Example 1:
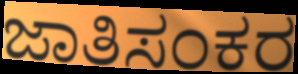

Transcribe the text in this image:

ಜಾತಿಸಂಕರ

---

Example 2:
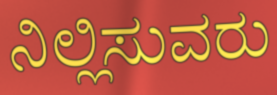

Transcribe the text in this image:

ನಿಲ್ಲಿಸುವರು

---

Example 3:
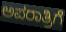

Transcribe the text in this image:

ಅಪರಾತ್ರಿಗೆ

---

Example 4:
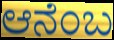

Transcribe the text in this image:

ಆನೆಂಬ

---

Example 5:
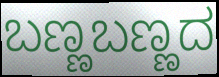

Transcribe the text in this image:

ಬಣ್ಣಬಣ್ಣದ